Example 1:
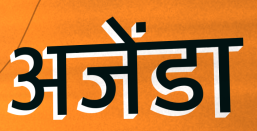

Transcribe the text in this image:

अजेंडा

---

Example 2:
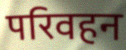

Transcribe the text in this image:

परिवहन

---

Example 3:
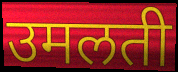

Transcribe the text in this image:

उमलती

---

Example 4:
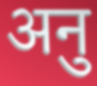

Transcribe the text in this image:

अनु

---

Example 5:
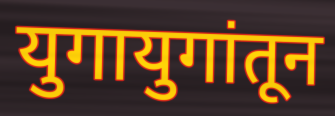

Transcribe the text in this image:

युगायुगांतून